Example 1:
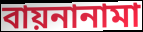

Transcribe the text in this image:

বায়নানামা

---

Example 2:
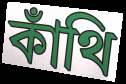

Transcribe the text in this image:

কাঁথি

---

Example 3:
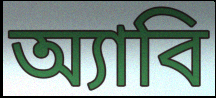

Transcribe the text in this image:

অ্যাবি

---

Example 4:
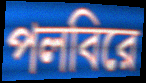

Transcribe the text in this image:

পলবিরে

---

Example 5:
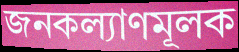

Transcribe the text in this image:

জনকল্যাণমূলক